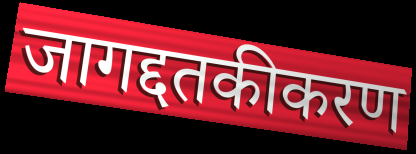
जागद्दतकीकरण